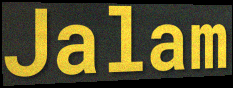
Jalam